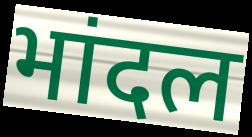
भांदल